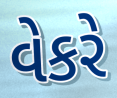
વેકરે